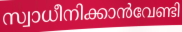
സ്വാധീനിക്കാൻവേണ്ടി